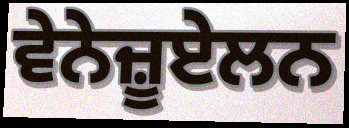
ਵੇਨੇਜ਼ੂਏਲਨ